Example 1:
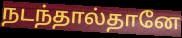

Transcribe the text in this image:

நடந்தால்தானே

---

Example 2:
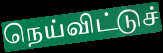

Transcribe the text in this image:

நெய்விட்டுச்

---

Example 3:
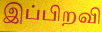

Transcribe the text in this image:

இப்பிறவி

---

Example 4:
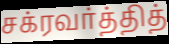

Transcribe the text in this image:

சக்ரவர்த்தித்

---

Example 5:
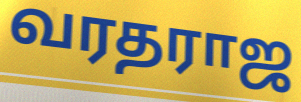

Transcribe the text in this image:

வரதராஜ